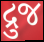
દ્રુજ